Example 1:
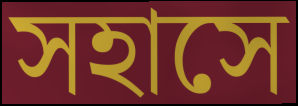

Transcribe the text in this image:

সহাসে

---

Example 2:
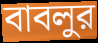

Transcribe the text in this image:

বাবলুর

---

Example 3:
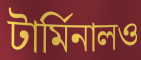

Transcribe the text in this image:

টার্মিনালও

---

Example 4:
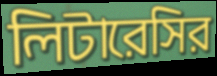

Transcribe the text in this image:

লিটারেসির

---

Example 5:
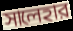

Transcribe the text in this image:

সালেহার